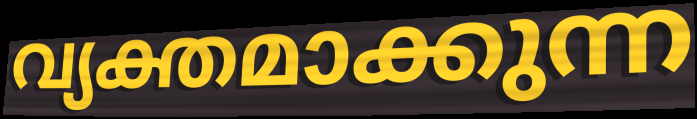
വ്യക്തമാക്കുന്ന